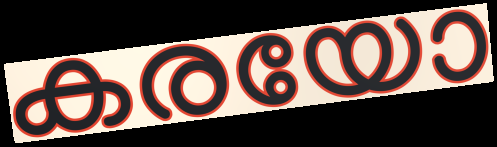
കരയോ